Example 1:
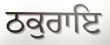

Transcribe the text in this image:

ਠਕੁਰਾਇ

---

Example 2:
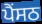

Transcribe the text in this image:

ਪੈਂਸਠ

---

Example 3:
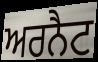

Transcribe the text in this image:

ਅਰਨੈਟ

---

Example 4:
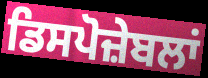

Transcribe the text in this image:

ਡਿਸਪੋਜ਼ੇਬਲਾਂ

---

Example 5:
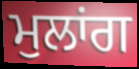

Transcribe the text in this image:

ਮੁਲਾਂਗ